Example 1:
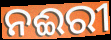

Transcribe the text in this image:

ନଈରୀ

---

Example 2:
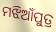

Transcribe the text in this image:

ମଝିଆଁପୁତ୍ର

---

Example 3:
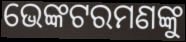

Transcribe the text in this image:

ଭେଙ୍କଟରମଣଙ୍କୁ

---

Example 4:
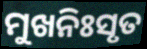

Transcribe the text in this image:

ମୁଖନିଃସୃତ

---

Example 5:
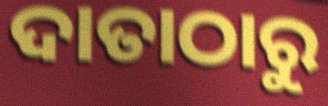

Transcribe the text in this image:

ଦାତାଠାରୁ